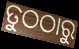
ତୁଠଠାରୁ